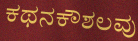
ಕಥನಕೌಶಲವು